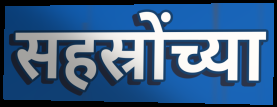
सहस्रोंच्या